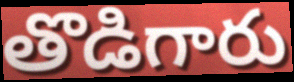
తొడిగారు